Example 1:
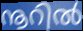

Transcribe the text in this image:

നൂറിൽ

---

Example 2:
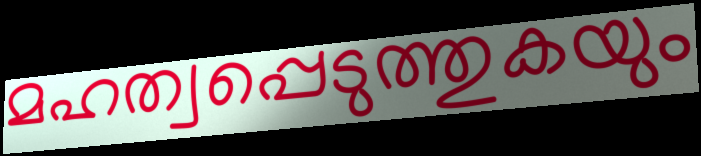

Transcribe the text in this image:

മഹത്വപ്പെടുത്തുകയും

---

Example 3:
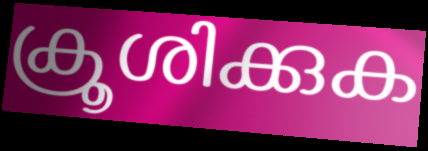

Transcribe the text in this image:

ക്രൂശിക്കുക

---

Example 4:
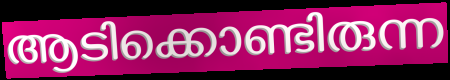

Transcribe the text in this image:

ആടിക്കൊണ്ടിരുന്ന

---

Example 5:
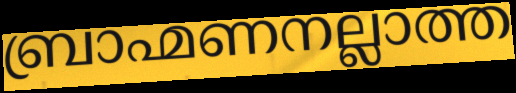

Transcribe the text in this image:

ബ്രാഹ്മണനല്ലാത്ത